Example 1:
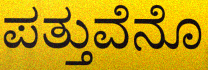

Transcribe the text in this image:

ಪತ್ತುವೆನೊ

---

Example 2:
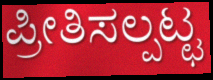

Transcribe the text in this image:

ಪ್ರೀತಿಸಲ್ಪಟ್ಟ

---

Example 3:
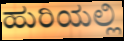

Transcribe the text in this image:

ಹುರಿಯಲ್ಲಿ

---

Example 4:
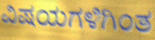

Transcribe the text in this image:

ವಿಷಯಗಳಿಗಿಂತ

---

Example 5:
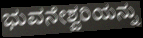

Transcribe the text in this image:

ಭುವನೇಶ್ವರಿಯನ್ನು